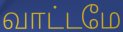
வாட்டமே